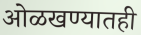
ओळखण्यातही